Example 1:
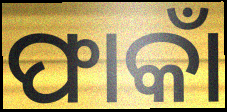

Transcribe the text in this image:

ଫାକାଁ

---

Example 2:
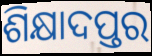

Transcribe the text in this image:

ଶିକ୍ଷାଦପ୍ତର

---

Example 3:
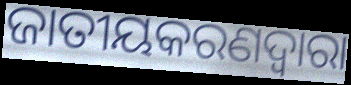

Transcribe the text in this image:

ଜାତୀୟକରଣଦ୍ୱାରା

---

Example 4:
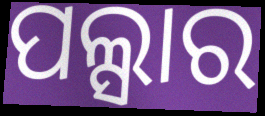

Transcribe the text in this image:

ପଲ୍ସାର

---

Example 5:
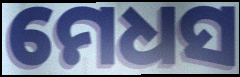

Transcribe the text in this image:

ମେଧସ